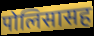
पोलिसासह